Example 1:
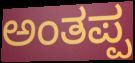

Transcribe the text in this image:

ಅಂತಪ್ಪ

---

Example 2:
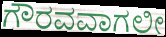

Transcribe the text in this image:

ಗೌರವವಾಗಲೀ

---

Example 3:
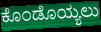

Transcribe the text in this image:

ಕೊಂಡೊಯ್ಯಲು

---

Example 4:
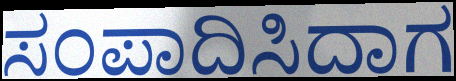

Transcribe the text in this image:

ಸಂಪಾದಿಸಿದಾಗ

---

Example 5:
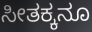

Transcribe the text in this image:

ಸೀತಕ್ಕನೂ